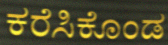
ಕರೆಸಿಕೊಂಡ